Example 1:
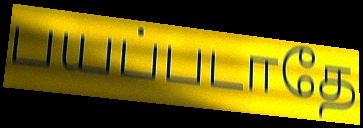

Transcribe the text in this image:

பயப்படாதே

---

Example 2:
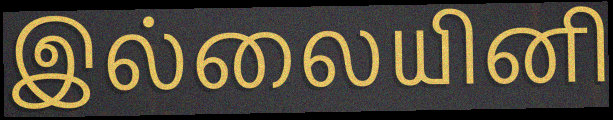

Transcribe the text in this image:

இல்லையினி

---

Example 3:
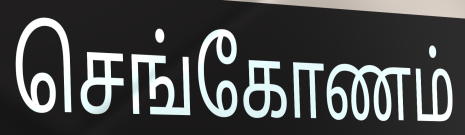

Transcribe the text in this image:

செங்கோணம்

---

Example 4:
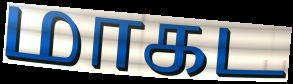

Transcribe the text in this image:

மாகட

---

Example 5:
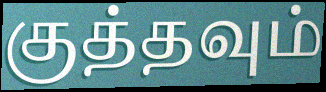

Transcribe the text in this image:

குத்தவும்